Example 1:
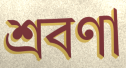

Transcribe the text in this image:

শ্রবণা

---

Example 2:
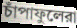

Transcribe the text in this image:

চাঁপাফুলেরা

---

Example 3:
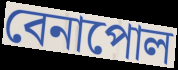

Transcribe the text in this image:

বেনাপোল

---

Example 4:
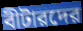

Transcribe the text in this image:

বীটারদের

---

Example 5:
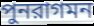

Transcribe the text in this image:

পুনরাগমন